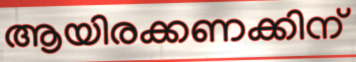
ആയിരക്കണക്കിന്